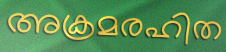
അക്രമരഹിത